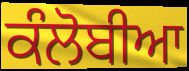
ਕੰਲੋਬੀਆ